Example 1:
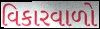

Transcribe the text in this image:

વિકારવાળો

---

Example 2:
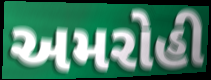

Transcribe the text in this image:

અમરોહી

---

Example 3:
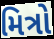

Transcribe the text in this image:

મિત્રો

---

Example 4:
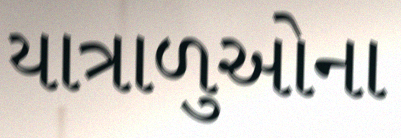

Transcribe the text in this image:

યાત્રાળુઓના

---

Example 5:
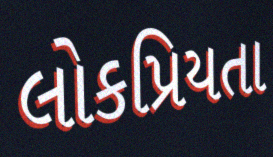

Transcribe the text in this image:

લોકપ્રિયતા